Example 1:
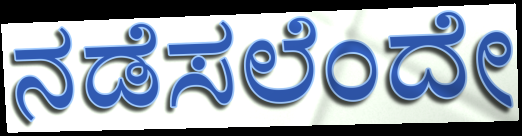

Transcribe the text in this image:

ನಡೆಸಲೆಂದೇ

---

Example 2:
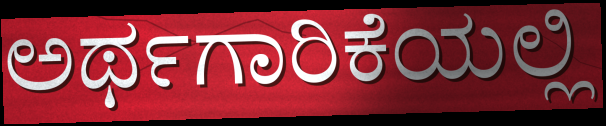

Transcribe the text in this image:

ಅರ್ಥಗಾರಿಕೆಯಲ್ಲಿ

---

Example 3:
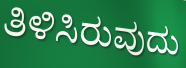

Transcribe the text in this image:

ತಿಳಿಸಿರುವುದು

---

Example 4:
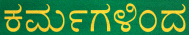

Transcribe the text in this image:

ಕರ್ಮಗಳಿಂದ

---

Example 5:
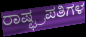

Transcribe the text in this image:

ರಾಷ್ಟ್ರಪತಿಗಳ